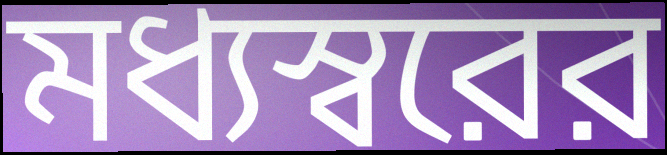
মধ্যস্বরের